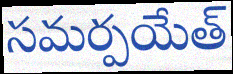
సమర్పయేత్